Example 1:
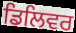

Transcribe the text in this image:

ਡਿਲਿਵਰ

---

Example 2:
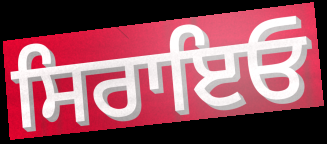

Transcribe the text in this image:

ਸਿਰਾਇਓ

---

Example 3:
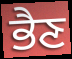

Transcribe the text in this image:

ਭੈਣ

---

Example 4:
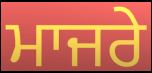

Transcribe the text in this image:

ਮਾਜਰੇ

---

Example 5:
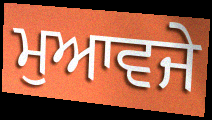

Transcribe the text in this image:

ਮੁਆਵਜੇ